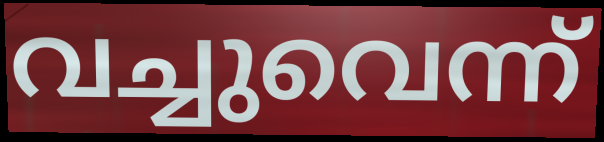
വച്ചുവെന്ന്